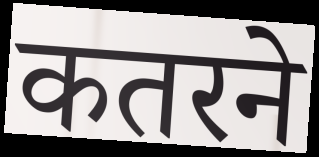
कतरने